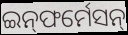
ଇନ୍‍ଫର୍ମେସନ୍